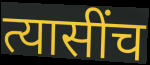
त्यासींच